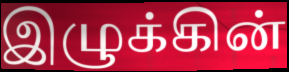
இழுக்கின்